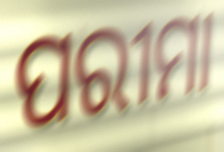
ପରୀମା